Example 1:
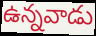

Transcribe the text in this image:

ఉన్నవాడు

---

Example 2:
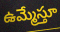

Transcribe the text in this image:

ఉమ్మేస్తూ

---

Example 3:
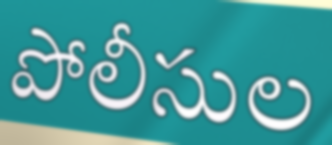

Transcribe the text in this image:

పోలీసుల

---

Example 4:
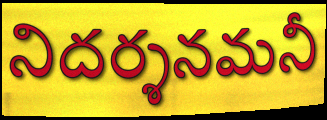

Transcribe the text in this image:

నిదర్శనమనీ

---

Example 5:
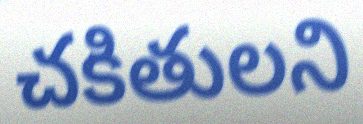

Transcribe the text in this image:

చకితులని